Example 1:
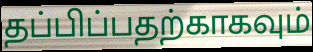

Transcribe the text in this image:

தப்பிப்பதற்காகவும்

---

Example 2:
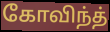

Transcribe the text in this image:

கோவிந்த்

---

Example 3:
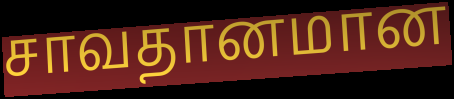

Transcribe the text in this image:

சாவதானமான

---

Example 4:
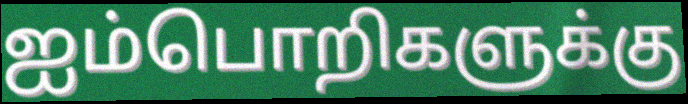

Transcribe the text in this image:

ஐம்பொறிகளுக்கு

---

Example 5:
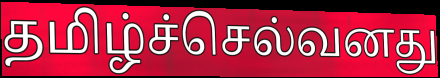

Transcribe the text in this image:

தமிழ்ச்செல்வனது